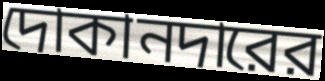
দোকানদারের